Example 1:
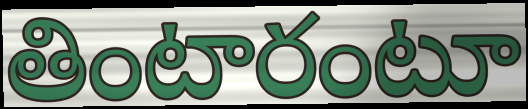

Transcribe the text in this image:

తింటారంటూ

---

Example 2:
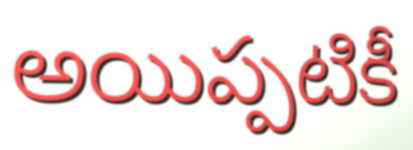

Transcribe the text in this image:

అయిప్పటికీ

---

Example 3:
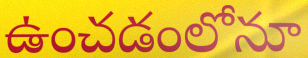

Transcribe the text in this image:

ఉంచడంలోనూ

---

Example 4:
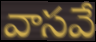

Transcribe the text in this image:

వాసవే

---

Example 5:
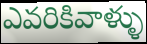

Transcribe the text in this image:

ఎవరికివాళ్ళు